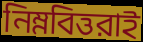
নিম্নবিত্তরাই